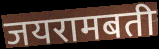
जयरामबती